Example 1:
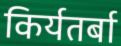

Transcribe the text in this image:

किर्यतर्बा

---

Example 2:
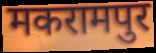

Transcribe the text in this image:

मकरामपुर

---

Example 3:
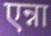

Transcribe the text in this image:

एन्ना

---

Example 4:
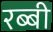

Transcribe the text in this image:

रब्बी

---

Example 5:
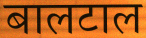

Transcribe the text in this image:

बालटाल